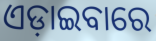
ଏଡ଼ାଇବାରେ